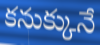
కనుక్కునే